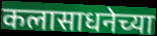
कलासाधनेच्या